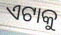
ଏଟାକୁ